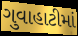
ગુવાહાટીમાં